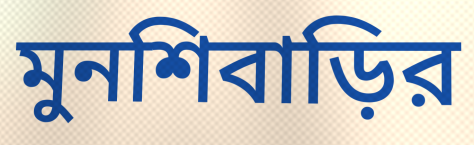
মুনশিবাড়ির